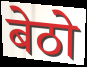
बेठो